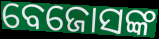
ବେଜୋସଙ୍କ